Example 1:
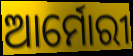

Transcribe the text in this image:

ଆର୍ମୋରୀ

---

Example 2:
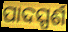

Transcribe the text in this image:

ପାଦସ୍ପର୍ଶ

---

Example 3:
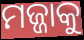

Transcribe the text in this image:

ମଜ୍ଜାକୁ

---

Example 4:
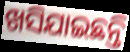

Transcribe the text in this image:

ଖସିଯାଇଛନ୍ତି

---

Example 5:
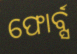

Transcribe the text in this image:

ଫୋର୍ବ୍ସ